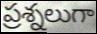
ప్రశ్నలుగా